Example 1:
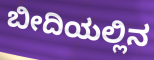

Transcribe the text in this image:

ಬೀದಿಯಲ್ಲಿನ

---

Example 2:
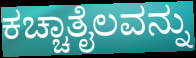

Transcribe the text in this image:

ಕಚ್ಚಾತೈಲವನ್ನು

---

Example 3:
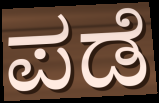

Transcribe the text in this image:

ಪಡೆ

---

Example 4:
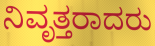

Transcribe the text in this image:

ನಿವೃತ್ತರಾದರು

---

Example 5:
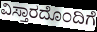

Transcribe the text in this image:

ವಿಸ್ತಾರದೊಂದಿಗೆ